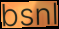
bsnl